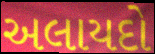
અલાયદો